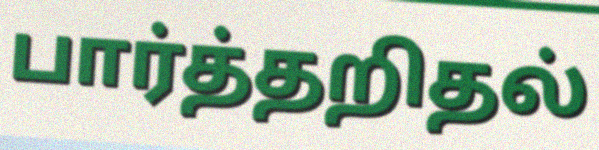
பார்த்தறிதல்